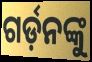
ଗର୍ଡ଼ନଙ୍କୁ